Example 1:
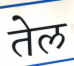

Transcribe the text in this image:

तेल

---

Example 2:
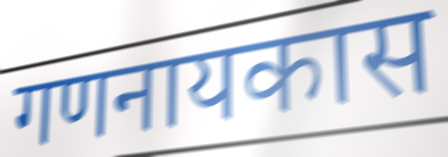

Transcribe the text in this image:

गणनायकास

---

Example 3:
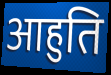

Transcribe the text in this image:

आहुति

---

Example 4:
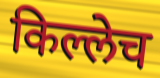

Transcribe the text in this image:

किल्लेच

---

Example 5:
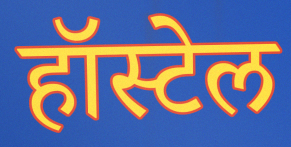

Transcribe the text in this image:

हॉस्टेल